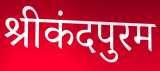
श्रीकंदपुरम